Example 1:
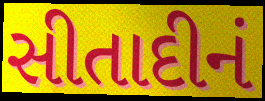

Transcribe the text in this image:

સીતાદીનં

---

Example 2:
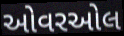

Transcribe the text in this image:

ઓવરઓલ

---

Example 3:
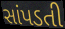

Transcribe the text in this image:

સાંપડતી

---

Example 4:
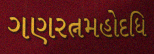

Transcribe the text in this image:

ગણરત્નમહોદધિ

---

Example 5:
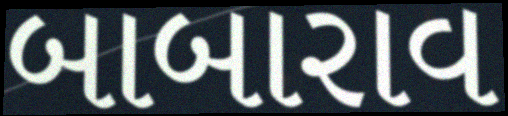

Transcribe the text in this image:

બાબારાવ